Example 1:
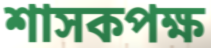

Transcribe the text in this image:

শাসকপক্ষ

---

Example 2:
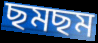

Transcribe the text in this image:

ছমছম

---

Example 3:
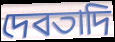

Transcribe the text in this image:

দেবতাদি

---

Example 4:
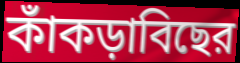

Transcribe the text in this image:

কাঁকড়াবিছের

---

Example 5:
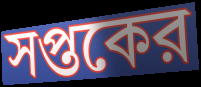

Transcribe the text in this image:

সপ্তকের